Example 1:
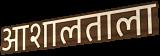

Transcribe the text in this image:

आशालताला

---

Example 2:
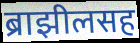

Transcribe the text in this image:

ब्राझीलसह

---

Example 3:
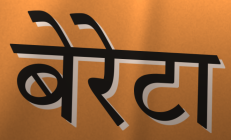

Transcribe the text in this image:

बेरेटा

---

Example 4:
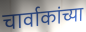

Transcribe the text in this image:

चार्वाकांच्या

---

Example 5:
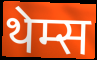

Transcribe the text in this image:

थेम्स